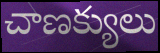
చాణక్యులు